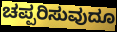
ಚಪ್ಪರಿಸುವುದೂ